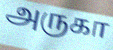
அருகா